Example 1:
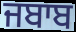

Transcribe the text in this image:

ਜਬਾਬ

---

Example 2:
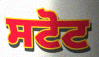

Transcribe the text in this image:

ਸਟੋਟ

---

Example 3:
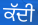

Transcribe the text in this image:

ਕੱਦੀ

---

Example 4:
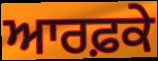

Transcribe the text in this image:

ਆਰਫ਼ਕੇ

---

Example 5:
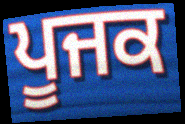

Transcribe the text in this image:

ਪੂਜਕ